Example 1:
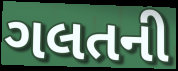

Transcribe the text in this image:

ગલતની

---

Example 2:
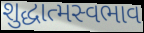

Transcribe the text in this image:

શુદ્ધાત્મસ્વભાવ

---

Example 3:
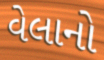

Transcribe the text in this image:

વેલાનો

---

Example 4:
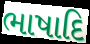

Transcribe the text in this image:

ભાષાદિ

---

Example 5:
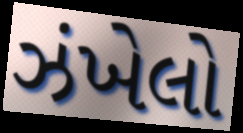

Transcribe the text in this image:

ઝંખેલો